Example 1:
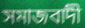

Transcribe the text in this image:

সমাজবাদী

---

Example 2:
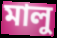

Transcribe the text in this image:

মালু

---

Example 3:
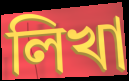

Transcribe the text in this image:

লিখা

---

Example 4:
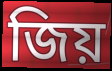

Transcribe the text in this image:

জিয়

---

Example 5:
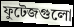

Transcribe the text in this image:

ফুটেজগুলো